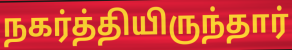
நகர்த்தியிருந்தார்